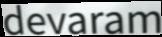
devaram